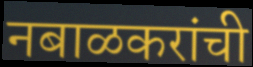
नबाळकरांची